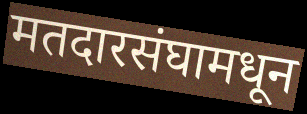
मतदारसंघामधून